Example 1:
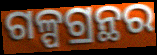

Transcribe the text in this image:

ଗଳ୍ପଗ୍ରନ୍ଥର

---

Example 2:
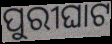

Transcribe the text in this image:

ପୁରୀଘାଟ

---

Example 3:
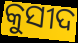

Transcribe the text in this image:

କୁସୀଦ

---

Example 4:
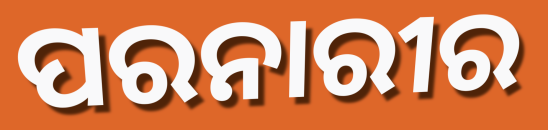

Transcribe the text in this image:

ପରନାରୀର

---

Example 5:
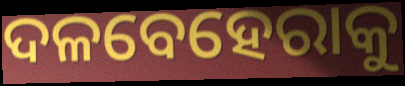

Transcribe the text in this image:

ଦଳବେହେରାକୁ